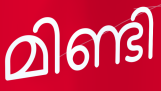
മിണ്ടി